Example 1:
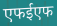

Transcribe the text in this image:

एफईएफ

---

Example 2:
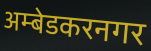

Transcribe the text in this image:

अम्बेडकरनगर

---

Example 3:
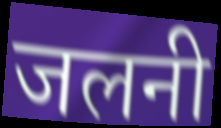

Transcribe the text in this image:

जलनी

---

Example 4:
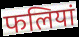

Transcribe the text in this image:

फलियां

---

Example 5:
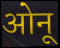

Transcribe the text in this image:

ओनू